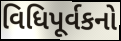
વિધિપૂર્વકનો